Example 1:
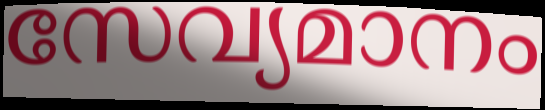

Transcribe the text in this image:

സേവ്യമാനം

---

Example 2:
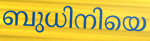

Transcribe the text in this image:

ബുധിനിയെ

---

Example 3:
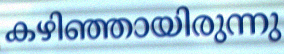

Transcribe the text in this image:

കഴിഞ്ഞായിരുന്നു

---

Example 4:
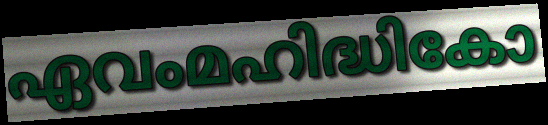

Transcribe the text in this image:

ഏവംമഹിദ്ധികോ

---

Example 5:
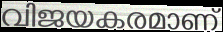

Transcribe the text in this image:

വിജയകരമാണ്